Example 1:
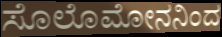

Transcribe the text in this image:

ಸೊಲೊಮೋನನಿಂದ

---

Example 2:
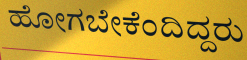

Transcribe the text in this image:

ಹೋಗಬೇಕೆಂದಿದ್ದರು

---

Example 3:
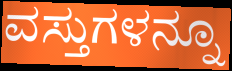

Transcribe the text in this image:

ವಸ್ತುಗಳನ್ನೂ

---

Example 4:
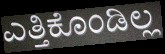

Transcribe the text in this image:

ಎತ್ತಿಕೊಂಡಿಲ್ಲ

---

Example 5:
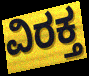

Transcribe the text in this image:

ವಿರಕ್ತ